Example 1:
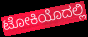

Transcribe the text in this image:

ಟೋಕಿಯೊದಲ್ಲಿ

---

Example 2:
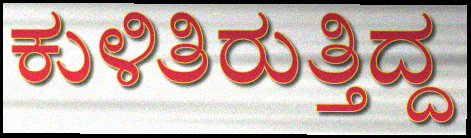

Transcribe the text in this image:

ಕುಳಿತಿರುತ್ತಿದ್ದ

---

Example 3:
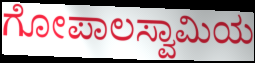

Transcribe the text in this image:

ಗೋಪಾಲಸ್ವಾಮಿಯ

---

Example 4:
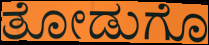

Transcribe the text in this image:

ತೋಡುಗೊ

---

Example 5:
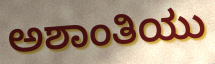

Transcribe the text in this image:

ಅಶಾಂತಿಯು